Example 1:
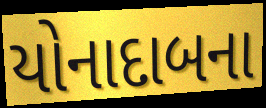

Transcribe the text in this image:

યોનાદાબના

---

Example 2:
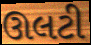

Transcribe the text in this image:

ઊલટી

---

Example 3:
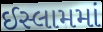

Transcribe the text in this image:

ઈસ્લામમાં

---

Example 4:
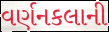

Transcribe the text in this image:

વર્ણનકલાની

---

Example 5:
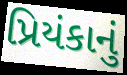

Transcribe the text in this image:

પ્રિયંકાનું